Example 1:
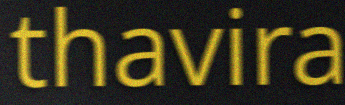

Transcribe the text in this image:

thavira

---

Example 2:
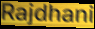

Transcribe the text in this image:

Rajdhani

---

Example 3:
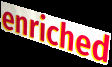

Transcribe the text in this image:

enriched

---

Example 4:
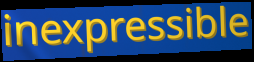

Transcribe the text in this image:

inexpressible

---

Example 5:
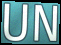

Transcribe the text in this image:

UN